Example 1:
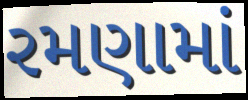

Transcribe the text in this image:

રમણામાં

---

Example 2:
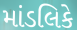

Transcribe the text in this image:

માંડલિકે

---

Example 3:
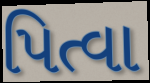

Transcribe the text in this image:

પિત્વા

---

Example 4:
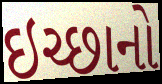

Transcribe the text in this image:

ઇચ્છાનો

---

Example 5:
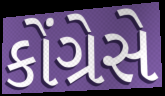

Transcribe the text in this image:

કોંગ્રેસે